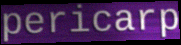
pericarp